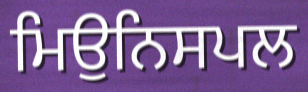
ਮਿਉਨਿਸਪਲ